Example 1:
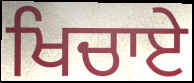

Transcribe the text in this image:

ਖਿਚਾਏ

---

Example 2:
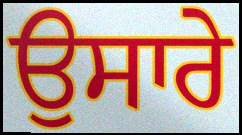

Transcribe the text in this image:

ਉਸਾਰੇ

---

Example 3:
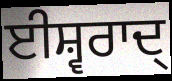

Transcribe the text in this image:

ਈਸ਼੍ਵਰਾਦ੍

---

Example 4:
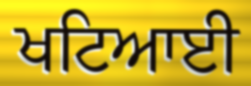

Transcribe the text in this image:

ਖਟਿਆਈ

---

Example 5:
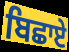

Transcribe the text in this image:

ਬਿਛਾਏ